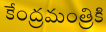
కేంద్రమంత్రికి